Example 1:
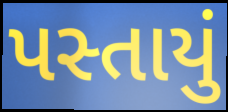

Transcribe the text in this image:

પસ્તાયું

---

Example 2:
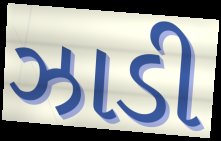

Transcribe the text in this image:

ઝાડી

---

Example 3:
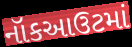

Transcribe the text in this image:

નૉકઆઉટમાં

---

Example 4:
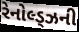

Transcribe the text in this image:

રેનોલ્ડ્ઝની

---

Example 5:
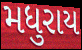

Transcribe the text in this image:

મધુરાય